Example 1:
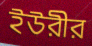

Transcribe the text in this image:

ইউরীর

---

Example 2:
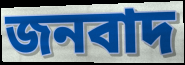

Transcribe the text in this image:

জনবাদ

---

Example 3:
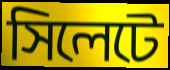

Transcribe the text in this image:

সিলেটে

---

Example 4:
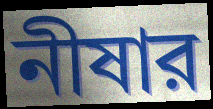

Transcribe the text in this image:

নীষার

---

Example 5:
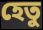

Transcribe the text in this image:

হেতু